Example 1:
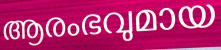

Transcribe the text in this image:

ആരംഭവുമായ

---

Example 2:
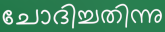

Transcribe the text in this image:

ചോദിച്ചതിന്നു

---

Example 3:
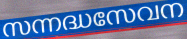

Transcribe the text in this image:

സന്നദ്ധസേവന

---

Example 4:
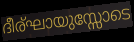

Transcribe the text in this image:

ദീര്ഘായുസ്സോടെ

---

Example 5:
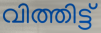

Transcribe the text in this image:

വിത്തിട്ട്